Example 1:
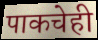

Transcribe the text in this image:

पाकचेही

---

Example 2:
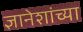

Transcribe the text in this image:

ज्ञानेशांच्या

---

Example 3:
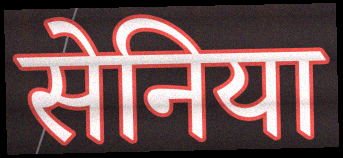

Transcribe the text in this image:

सेनिया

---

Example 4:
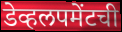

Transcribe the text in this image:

डेव्हलपमेंटची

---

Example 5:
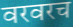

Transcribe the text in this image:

वरवरच